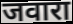
जवारा